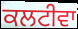
ਕਲਟੀਵਾ